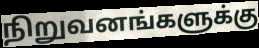
நிறுவனங்களுக்கு